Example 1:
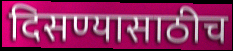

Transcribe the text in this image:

दिसण्यासाठीच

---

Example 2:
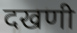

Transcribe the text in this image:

दखणी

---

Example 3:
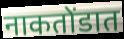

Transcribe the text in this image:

नाकतोंडात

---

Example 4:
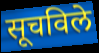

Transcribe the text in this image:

सूचविले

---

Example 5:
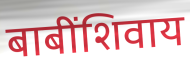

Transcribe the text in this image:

बाबींशिवाय